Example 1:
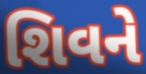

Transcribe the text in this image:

શિવને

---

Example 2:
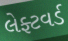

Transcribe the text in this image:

લેફ્ટવર્ડ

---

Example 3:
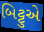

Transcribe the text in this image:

બિટ્ટુએ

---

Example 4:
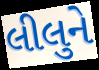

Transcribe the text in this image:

લીલુને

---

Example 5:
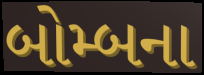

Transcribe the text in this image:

બોમ્બના